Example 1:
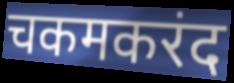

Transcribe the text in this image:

चकमकरंद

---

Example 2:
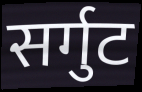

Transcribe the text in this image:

सर्गुट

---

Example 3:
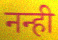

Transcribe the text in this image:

नन्ही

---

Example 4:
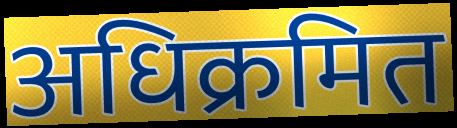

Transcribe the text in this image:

अधिक्रमित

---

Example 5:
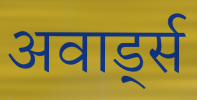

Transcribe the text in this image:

अवार्ड्स